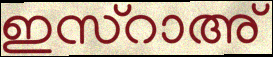
ഇസ്റാഅ്